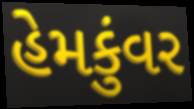
હેમકુંવર